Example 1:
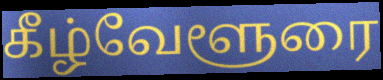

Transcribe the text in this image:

கீழ்வேளூரை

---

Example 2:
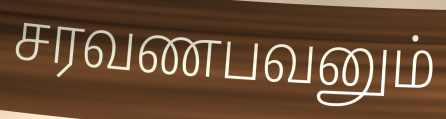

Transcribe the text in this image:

சரவணபவனும்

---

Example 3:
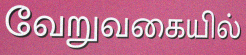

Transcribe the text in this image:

வேறுவகையில்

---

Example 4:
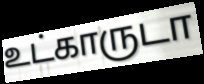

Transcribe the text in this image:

உட்காருடா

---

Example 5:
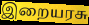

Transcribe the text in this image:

இறையரசு